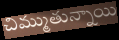
చిమ్ముతున్నాయి